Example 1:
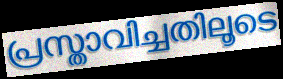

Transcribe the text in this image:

പ്രസ്താവിച്ചതിലൂടെ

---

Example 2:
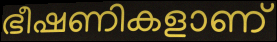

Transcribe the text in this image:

ഭീഷണികളാണ്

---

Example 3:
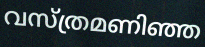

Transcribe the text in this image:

വസ്ത്രമണിഞ്ഞ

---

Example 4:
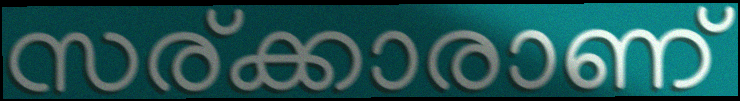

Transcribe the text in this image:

സര്ക്കാരാണ്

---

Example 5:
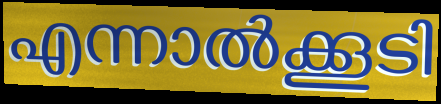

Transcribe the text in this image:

എന്നാൽക്കൂടി